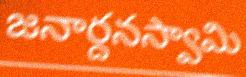
జనార్దనస్వామి